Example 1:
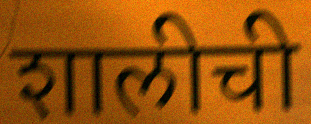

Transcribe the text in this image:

शालीची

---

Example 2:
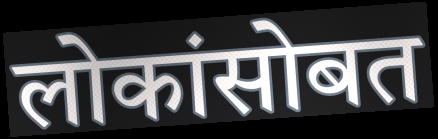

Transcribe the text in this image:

लोकांसोबत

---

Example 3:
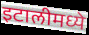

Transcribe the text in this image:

इटालीमध्ये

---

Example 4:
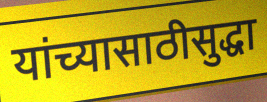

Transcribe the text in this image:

यांच्यासाठीसुद्धा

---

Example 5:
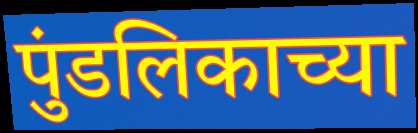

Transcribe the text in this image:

पुंडलिकाच्या